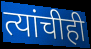
त्यांचीही